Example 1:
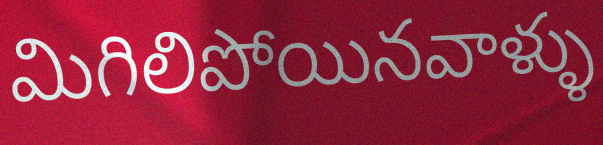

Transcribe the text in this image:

మిగిలిపోయినవాళ్ళు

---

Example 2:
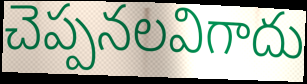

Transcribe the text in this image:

చెప్పనలవిగాదు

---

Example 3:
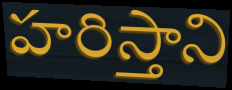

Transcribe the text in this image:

హరిస్తాని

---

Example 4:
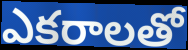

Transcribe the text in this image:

ఎకరాలతో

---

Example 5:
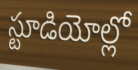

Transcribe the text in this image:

స్టూడియోల్లో